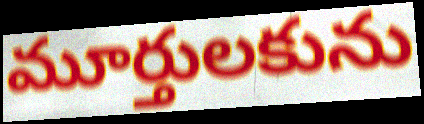
మూర్తులకును